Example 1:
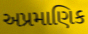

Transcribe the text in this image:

અપ્રમાણિક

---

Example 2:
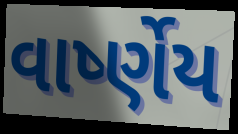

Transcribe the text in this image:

વાર્ષ્ણેય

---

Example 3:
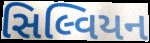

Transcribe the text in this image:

સિલ્વિયન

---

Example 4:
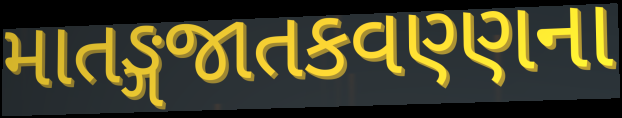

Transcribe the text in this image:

માતઙ્ગજાતકવણ્ણના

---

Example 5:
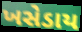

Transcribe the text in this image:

ખસેડાય